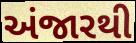
અંજારથી